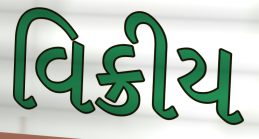
વિક્રીય